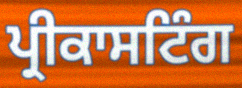
ਪ੍ਰੀਕਾਸਟਿੰਗ